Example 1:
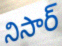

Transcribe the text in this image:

నిసార్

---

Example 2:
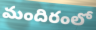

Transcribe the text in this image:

మందిరంలో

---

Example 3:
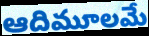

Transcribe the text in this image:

ఆదిమూలమే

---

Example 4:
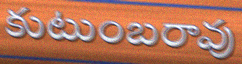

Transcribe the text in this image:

కుటుంబరావు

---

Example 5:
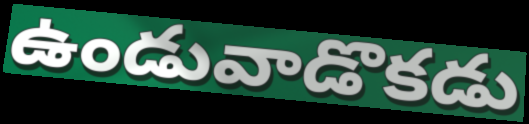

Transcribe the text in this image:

ఉండువాడొకడు